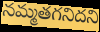
నమ్మతగనిదని